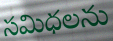
సమిధలను